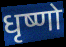
धृष्णो